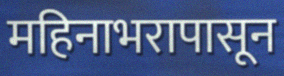
महिनाभरापासून